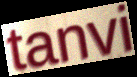
tanvi